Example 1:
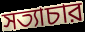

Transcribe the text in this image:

সত্যাচার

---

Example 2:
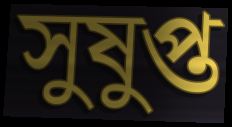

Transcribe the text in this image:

সুষুপ্ত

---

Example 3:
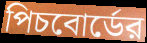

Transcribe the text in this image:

পিচবোর্ডের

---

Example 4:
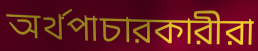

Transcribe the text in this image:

অর্থপাচারকারীরা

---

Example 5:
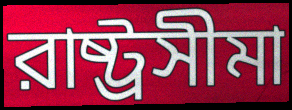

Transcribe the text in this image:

রাষ্ট্রসীমা